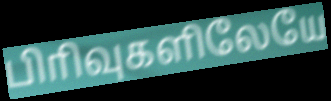
பிரிவுகளிலேயே